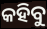
କହିବୁ